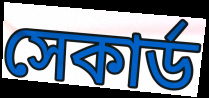
সেকার্ড